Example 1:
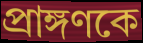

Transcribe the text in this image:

প্রাঙ্গণকে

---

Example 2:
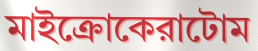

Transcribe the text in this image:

মাইক্রোকেরাটোম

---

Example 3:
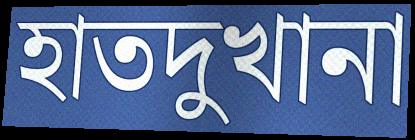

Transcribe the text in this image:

হাতদুখানা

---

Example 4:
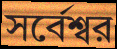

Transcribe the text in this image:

সর্বেশ্বর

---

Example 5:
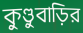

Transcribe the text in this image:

কুণ্ডুবাড়ির